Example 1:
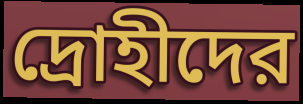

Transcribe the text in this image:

দ্রোহীদের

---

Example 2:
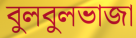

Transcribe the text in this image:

বুলবুলভাজা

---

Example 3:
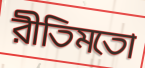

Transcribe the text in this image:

রীতিমতো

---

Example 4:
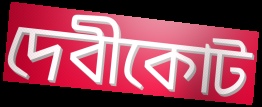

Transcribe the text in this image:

দেবীকোট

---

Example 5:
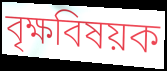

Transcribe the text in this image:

বৃক্ষবিষয়ক